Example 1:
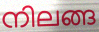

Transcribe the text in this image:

നിലങ്ങ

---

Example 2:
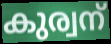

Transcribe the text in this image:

കുര്വന്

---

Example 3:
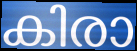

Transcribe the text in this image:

കിരാ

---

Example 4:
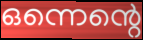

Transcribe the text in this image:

ഒന്നെന്റെ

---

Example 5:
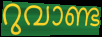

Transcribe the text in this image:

റുവാണ്ട